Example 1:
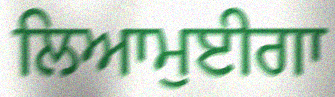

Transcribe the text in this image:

ਲਿਆਮੁਈਗਾ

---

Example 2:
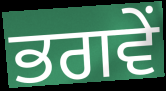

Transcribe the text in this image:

ਭਗਵੇਂ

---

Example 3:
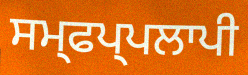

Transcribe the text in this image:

ਸਮ੍ਫਪ੍ਪਲਾਪੀ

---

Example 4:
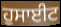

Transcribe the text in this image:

ਹੁਸਾਈਟ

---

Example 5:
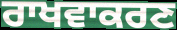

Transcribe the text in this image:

ਰਾਖਵਾਕਰਣ